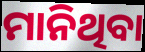
ମାନିଥିବା